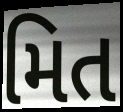
મિત